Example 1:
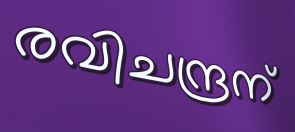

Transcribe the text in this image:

രവിചന്ദ്രന്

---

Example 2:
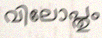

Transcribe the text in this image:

വിലോപ്തും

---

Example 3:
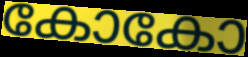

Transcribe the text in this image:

കോകോ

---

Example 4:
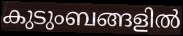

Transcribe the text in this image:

കുടുംബങ്ങളിൽ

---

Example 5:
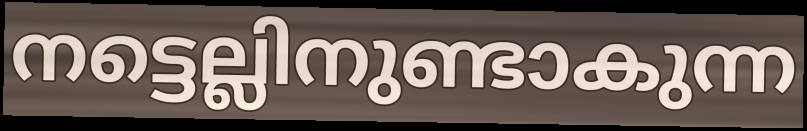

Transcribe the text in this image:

നട്ടെല്ലിനുണ്ടാകുന്ന